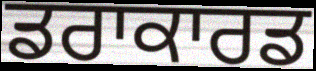
ਡਰਾਕਾਰਡ